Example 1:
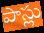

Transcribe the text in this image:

పాస్లు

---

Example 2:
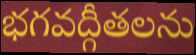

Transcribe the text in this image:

భగవద్గీతలను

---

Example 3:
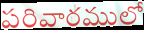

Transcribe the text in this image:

పరివారములో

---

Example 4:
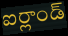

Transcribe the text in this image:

ఐర్లాండ్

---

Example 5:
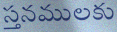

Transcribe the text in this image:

స్తనములకు